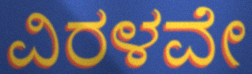
ವಿರಳವೇ